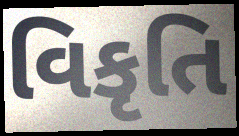
વિકૃતિ